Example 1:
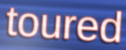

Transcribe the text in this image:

toured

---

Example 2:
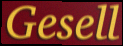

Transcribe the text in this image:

Gesell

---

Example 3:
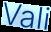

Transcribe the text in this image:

Vali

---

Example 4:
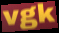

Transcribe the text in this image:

vgk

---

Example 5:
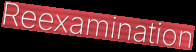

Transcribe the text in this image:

Reexamination